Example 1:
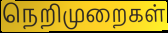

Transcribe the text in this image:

நெறிமுறைகள்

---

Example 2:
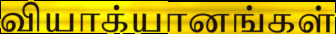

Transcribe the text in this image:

வியாக்யானங்கள்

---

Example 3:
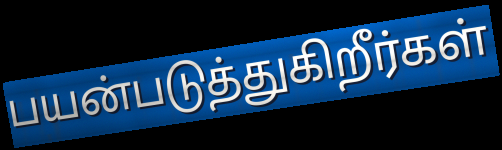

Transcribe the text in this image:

பயன்படுத்துகிறீர்கள்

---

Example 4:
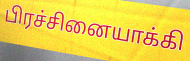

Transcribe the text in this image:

பிரச்சினையாக்கி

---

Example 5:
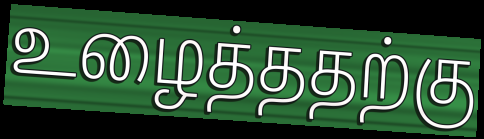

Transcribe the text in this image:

உழைத்ததற்கு